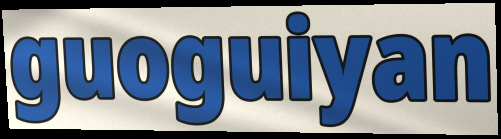
guoguiyan